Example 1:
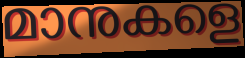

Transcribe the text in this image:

മാനുകളെ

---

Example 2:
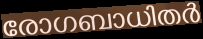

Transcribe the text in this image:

രോഗബാധിതർ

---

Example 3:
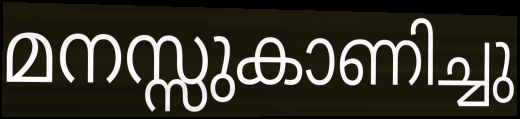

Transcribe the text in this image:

മനസ്സുകാണിച്ചു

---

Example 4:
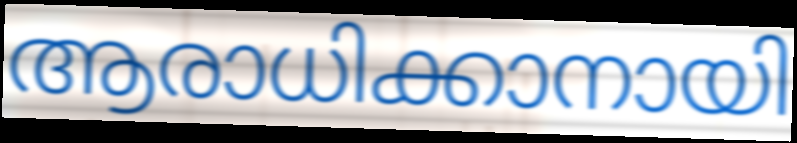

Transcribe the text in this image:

ആരാധിക്കാനായി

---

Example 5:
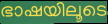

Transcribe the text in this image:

ഭാഷയിലൂടെ